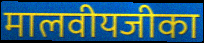
मालवीयजीका